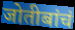
जोतीबांचं